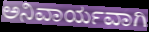
ಅನಿವಾರ್ಯವಾಗಿ